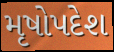
મૃષોપદેશ